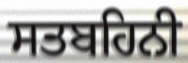
ਸਤਬਹਿਨੀ